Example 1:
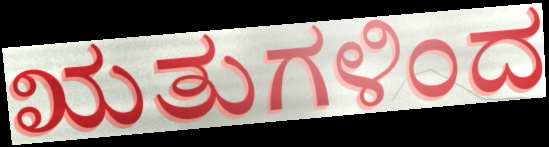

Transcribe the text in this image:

ಋತುಗಳಿಂದ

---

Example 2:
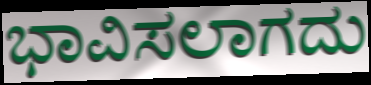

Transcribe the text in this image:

ಭಾವಿಸಲಾಗದು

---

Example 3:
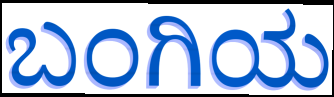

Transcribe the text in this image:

ಬಂಗಿಯ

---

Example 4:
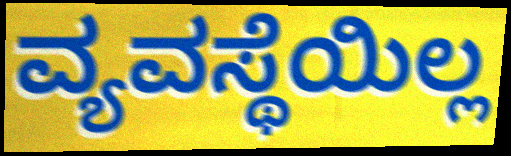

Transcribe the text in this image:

ವ್ಯವಸ್ಥೆಯಿಲ್ಲ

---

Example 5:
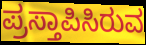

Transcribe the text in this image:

ಪ್ರಸ್ತಾಪಿಸಿರುವ